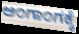
ಅಂಗಾಂಗಕ್ಕೆ